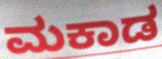
ಮಕಾಡ